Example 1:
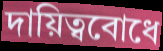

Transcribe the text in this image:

দায়িত্ববোধে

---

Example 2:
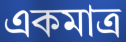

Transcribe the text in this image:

একমাত্ৰ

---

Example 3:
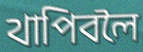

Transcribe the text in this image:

থাপিবলৈ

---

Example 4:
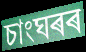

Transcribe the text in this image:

চাংঘৰৰ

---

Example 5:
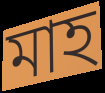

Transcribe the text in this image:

মাহ